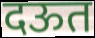
दऊत